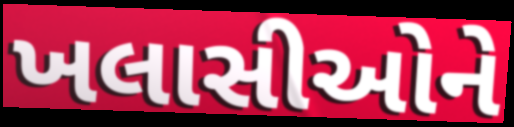
ખલાસીઓને